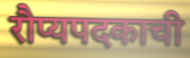
रौप्यपदकाची